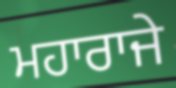
ਮਹਾਰਾਜੇ